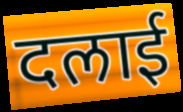
दलाई